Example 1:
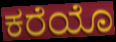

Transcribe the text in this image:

ಕರೆಯೊ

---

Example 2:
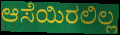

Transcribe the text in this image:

ಆಸೆಯಿರಲಿಲ್ಲ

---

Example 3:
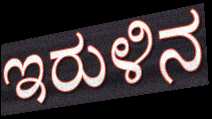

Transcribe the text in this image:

ಇರುಳಿನ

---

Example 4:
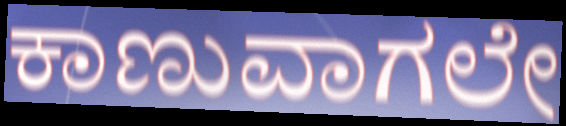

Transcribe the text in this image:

ಕಾಣುವಾಗಲೇ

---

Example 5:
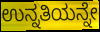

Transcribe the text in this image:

ಉನ್ನತಿಯನ್ನೇ